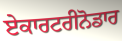
ਏਕਾਰਟਰੀਨੋਡਾਰ